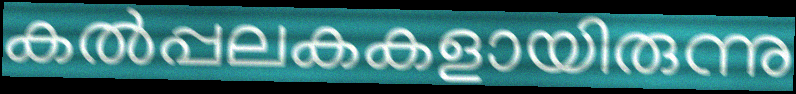
കൽപ്പലകകളായിരുന്നു